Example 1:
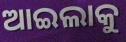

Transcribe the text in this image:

ଆଇଲାକୁ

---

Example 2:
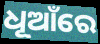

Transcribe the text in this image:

ଧୂଆଁରେ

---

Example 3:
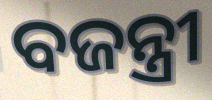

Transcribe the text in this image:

ବଜନ୍ତ୍ରୀ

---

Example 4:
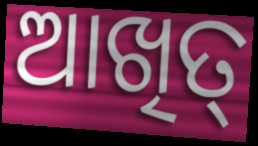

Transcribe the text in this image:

ଆଖିତ୍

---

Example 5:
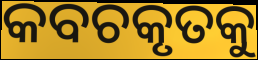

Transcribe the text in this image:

କବଚକୃତକୁ